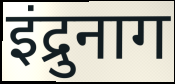
इंद्रुनाग